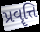
પ્રવૄત્તિ